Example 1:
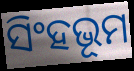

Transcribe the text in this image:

ସିଂହଭୂମ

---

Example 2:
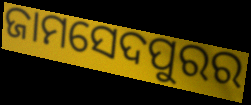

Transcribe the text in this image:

ଜାମସେଦପୁରର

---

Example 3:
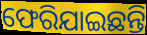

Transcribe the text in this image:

ଫେରିଯାଇଛନ୍ତି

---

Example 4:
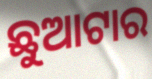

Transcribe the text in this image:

ଛୁଆଟାର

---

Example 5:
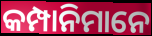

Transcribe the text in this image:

କମ୍ପାନିମାନେ